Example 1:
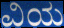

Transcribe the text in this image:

ವಿಯ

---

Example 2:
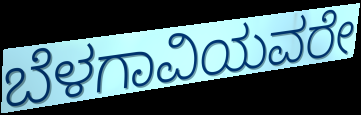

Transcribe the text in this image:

ಬೆಳಗಾವಿಯವರೇ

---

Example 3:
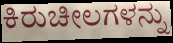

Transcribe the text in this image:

ಕಿರುಚೀಲಗಳನ್ನು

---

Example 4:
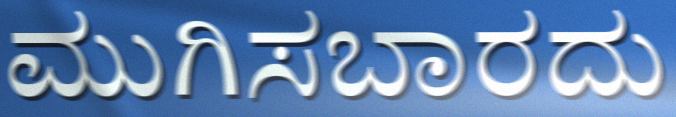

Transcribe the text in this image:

ಮುಗಿಸಬಾರದು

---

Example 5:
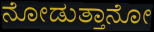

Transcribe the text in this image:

ನೋಡುತ್ತಾನೋ